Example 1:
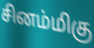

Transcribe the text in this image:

சினம்மிகு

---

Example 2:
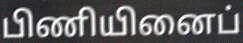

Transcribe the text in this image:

பிணியினைப்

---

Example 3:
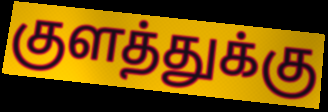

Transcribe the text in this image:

குளத்துக்கு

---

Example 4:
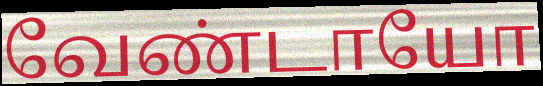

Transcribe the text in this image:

வேண்டாயோ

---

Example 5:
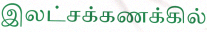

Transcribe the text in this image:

இலட்சக்கணக்கில்